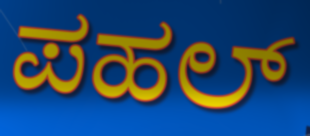
ಪಹಲ್